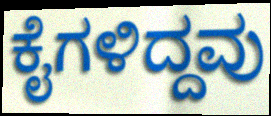
ಕೈಗಳಿದ್ದವು